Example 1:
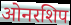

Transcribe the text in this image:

ओनरशिप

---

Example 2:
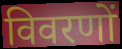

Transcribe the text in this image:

विवरणों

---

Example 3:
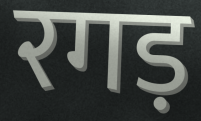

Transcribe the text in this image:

रगड़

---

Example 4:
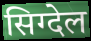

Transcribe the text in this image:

सिग्देल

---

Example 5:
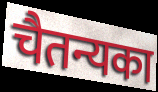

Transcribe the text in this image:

चैतन्यका